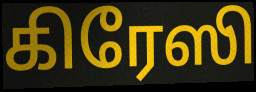
கிரேஸி